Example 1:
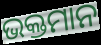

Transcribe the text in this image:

ଭକ୍ତମାନ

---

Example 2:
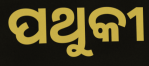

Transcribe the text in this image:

ପଥୁକୀ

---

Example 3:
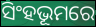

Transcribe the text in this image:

ସିଂହଭୂମରେ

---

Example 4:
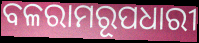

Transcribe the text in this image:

ବଳରାମରୂପଧାରୀ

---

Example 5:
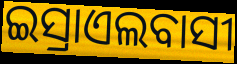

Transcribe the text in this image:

ଇସ୍ରାଏଲବାସୀ